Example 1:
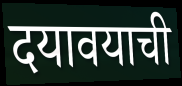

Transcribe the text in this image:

दयावयाची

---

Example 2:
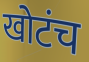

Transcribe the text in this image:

खोटंच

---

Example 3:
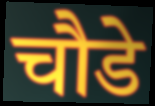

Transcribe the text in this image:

चौडे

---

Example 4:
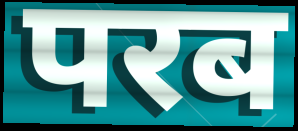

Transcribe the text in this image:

परब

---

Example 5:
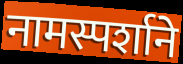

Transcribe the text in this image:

नामस्पर्शाने